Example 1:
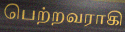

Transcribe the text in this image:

பெற்றவராகி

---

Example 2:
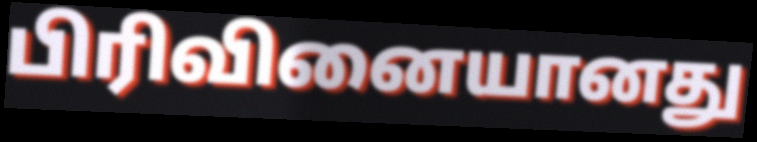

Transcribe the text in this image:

பிரிவினையானது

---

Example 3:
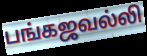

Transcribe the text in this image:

பங்கஜவல்லி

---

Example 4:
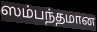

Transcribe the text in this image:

ஸம்பந்தமான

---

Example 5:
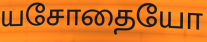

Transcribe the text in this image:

யசோதையோ